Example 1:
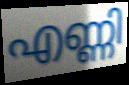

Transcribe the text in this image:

എണ്ണി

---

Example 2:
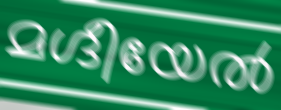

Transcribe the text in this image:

മഗ്ദീയേൽ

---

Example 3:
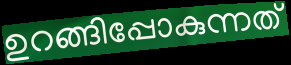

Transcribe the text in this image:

ഉറങ്ങിപ്പോകുന്നത്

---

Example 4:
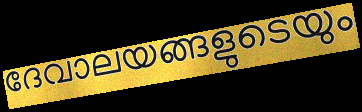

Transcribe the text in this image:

ദേവാലയങ്ങളുടെയും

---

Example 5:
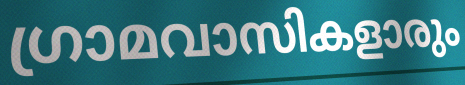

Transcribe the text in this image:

ഗ്രാമവാസികളാരും